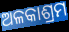
ଅଳକାଶ୍ରମ